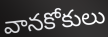
వానకోకులు